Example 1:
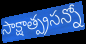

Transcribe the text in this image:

సాక్షాత్ప్రసన్నో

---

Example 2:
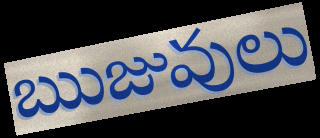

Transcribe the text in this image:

ఋజువులు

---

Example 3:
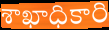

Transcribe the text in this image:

శాఖాధికారి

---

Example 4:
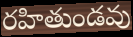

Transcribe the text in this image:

రహితుండవు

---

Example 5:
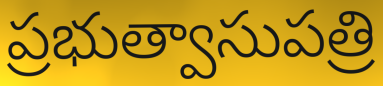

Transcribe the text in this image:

ప్రభుత్వాసుపత్రి